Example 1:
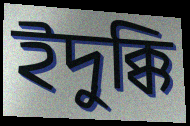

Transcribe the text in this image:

ইদুক্কি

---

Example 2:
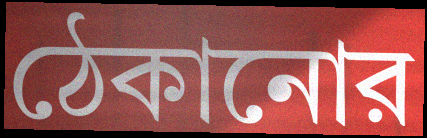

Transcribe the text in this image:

ঠেকানোর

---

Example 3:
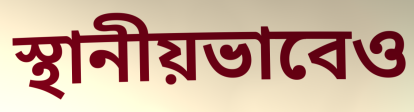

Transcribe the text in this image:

স্থানীয়ভাবেও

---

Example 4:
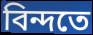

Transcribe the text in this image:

বিন্দতে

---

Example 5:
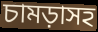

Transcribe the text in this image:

চামড়াসহ